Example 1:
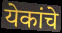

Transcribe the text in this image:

येकांचे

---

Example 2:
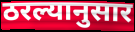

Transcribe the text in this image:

ठरल्यानुसार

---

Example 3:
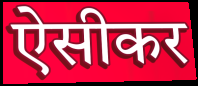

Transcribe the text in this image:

ऐसीकर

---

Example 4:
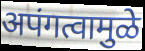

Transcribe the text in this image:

अपंगत्वामुळे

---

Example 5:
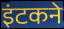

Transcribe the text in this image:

इंटकने